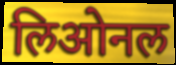
लिओनल